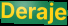
Deraje